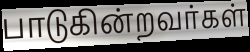
பாடுகின்றவர்கள்